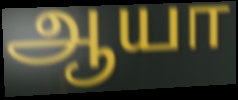
ஆயா